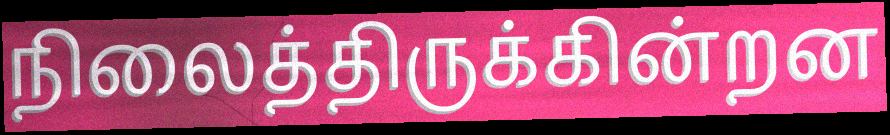
நிலைத்திருக்கின்றன